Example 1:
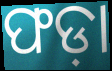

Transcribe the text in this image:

ଫଡ଼ା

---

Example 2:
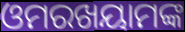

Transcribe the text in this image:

ଓମରଖୟାମଙ୍କ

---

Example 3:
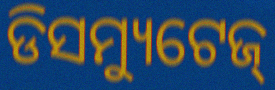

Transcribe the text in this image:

ଡିସମ୍ୟୁଟେଜ୍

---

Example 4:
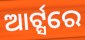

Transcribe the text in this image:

ଆର୍ଟ୍ସରେ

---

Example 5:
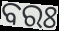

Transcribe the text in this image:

ବରଃ